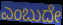
ಎಂಬುದೇ